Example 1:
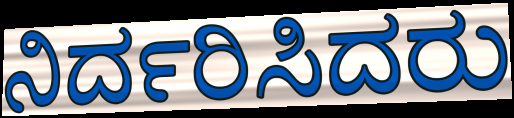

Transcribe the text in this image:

ನಿರ್ದರಿಸಿದರು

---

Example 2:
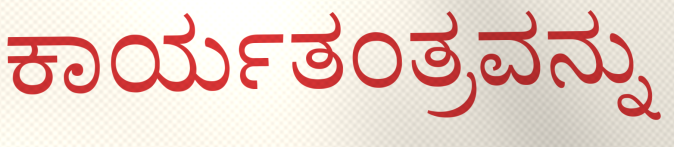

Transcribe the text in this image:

ಕಾರ್ಯತಂತ್ರವನ್ನು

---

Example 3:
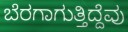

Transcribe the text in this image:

ಬೆರಗಾಗುತ್ತಿದ್ದೆವು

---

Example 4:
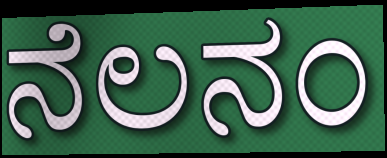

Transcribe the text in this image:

ನೆಲನಂ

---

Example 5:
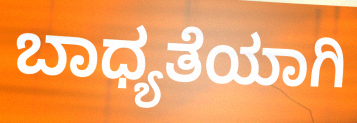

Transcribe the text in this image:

ಬಾಧ್ಯತೆಯಾಗಿ